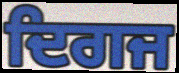
ਦਿਗਜ